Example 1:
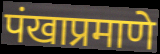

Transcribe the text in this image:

पंखाप्रमाणे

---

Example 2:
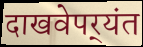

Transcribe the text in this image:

दाखवेपर्यंत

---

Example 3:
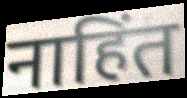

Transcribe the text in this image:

नाहिंत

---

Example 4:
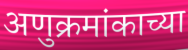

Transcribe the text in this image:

अणुक्रमांकाच्या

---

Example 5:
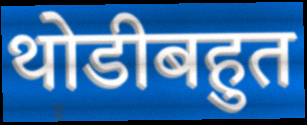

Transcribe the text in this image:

थोडीबहुत